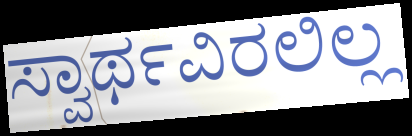
ಸ್ವಾರ್ಥವಿರಲಿಲ್ಲ